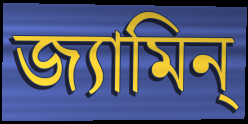
জ্যামিন্